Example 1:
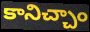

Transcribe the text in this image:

కానిచ్చాం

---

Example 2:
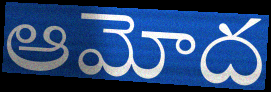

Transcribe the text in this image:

ఆమోద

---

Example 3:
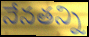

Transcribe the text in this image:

నేనతన్ని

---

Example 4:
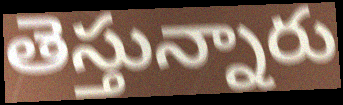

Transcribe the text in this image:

తెస్తున్నారు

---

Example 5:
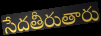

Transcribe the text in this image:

సేదతీరుతారు